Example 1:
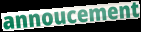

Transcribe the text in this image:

annoucement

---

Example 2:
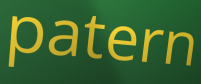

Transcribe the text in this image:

patern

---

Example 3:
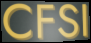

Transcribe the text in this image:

CFSI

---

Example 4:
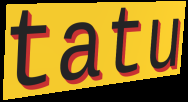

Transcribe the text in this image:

tatu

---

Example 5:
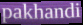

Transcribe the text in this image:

pakhandi